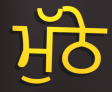
ਮੁੱਠੇ